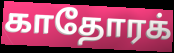
காதோரக்